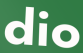
dio